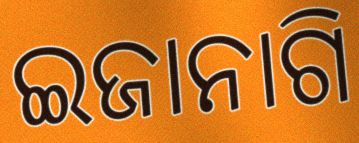
ଇଜାନାଗି